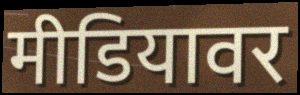
मीडियावर